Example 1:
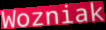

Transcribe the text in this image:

Wozniak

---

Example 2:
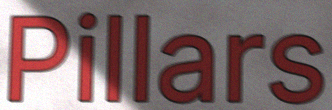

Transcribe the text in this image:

Pillars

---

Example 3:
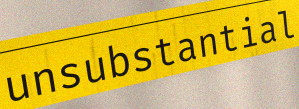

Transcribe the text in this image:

unsubstantial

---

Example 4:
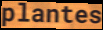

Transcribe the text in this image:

plantes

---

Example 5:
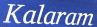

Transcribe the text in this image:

Kalaram